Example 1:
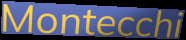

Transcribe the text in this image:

Montecchi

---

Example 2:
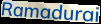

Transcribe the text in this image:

Ramadurai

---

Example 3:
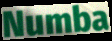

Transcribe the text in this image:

Numba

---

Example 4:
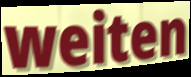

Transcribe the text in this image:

weiten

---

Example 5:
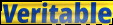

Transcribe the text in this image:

Veritable